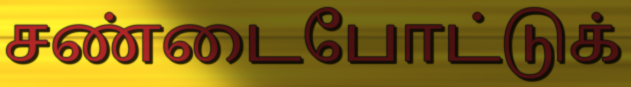
சண்டைபோட்டுக்